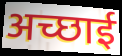
अच्छाई